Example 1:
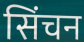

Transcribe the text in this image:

सिंचन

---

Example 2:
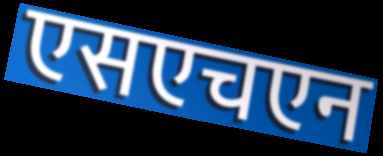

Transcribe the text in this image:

एसएचएन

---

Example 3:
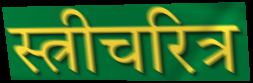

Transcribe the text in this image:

स्त्रीचरित्र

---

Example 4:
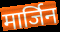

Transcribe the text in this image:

मार्जिन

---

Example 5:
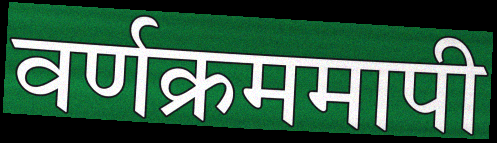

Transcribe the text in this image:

वर्णक्रममापी